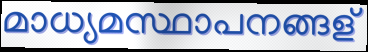
മാധ്യമസ്ഥാപനങ്ങള്